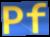
Pf